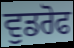
ਵੁਡਰੋਫ